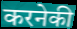
करनेकी